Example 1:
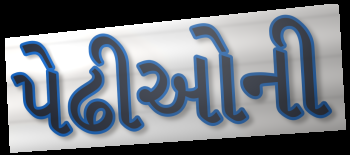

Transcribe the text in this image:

પેઢીઓની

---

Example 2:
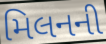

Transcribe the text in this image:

મિલનની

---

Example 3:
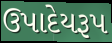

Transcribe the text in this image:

ઉપાદેયરૂપ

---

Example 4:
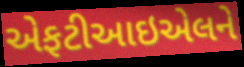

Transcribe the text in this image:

એફટીઆઇએલને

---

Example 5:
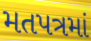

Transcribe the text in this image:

મતપત્રમાં